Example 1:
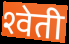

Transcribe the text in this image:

श्वेती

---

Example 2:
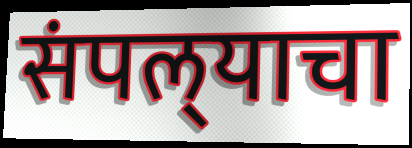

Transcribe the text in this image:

संपल्याचा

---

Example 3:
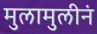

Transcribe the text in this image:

मुलामुलीनं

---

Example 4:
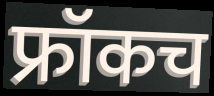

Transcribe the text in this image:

फ्रॉकच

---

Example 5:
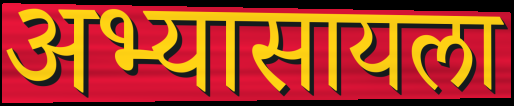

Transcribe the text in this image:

अभ्यासायला